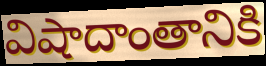
విషాదాంతానికి